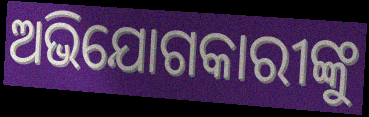
ଅଭିଯୋଗକାରୀଙ୍କୁ